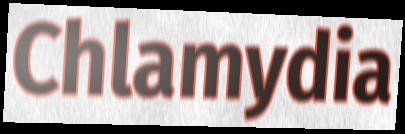
Chlamydia